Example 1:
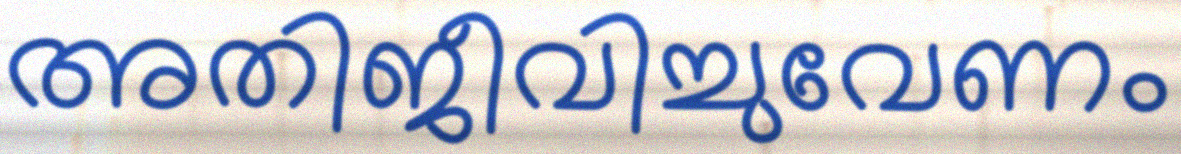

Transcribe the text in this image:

അതിജീവിച്ചുവേണം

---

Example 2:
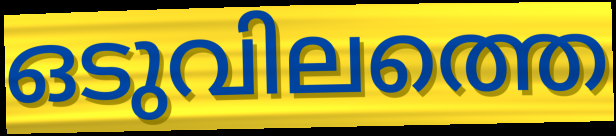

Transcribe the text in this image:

ഒടുവിലത്തെ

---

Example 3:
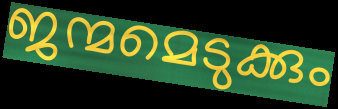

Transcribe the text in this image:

ജന്മമെടുക്കും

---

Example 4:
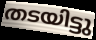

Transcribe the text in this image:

തടയിട്ടു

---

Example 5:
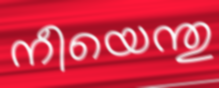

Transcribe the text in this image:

നീയെന്തു